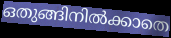
ഒതുങ്ങിനിൽക്കാതെ